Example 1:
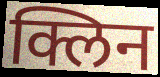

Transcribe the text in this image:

क्लिन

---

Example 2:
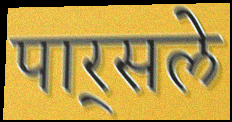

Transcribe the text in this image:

पार्सले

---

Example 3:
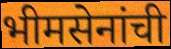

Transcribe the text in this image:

भीमसेनांची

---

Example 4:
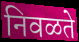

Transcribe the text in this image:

निवळते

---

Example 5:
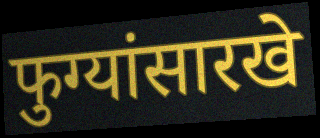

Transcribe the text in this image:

फुग्यांसारखे